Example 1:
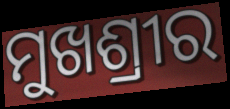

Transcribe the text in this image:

ମୁଖଶ୍ରୀର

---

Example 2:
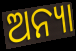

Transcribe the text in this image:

ଅନ୍ୟା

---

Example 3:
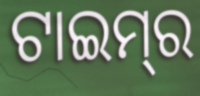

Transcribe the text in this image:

ଟାଇମ୍‌ର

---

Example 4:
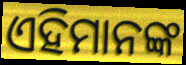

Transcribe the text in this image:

ଏହିମାନଙ୍କ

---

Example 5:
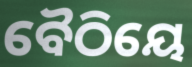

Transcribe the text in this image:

ବୈଠିୟେ